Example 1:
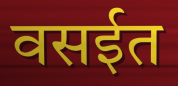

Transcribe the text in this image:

वसईत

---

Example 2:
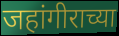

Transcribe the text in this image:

जहांगीराच्या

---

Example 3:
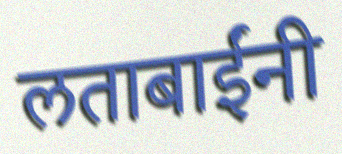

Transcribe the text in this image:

लताबाईंनी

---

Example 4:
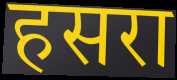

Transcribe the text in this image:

हसरा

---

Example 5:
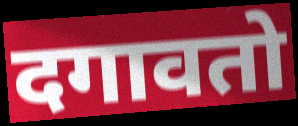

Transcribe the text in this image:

दगावतो